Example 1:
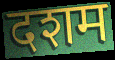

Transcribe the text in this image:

दशम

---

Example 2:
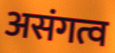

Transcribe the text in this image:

असंगत्व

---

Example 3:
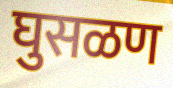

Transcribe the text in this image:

घुसळण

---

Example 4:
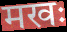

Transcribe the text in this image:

मखः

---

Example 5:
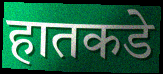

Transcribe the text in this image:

हातकडे